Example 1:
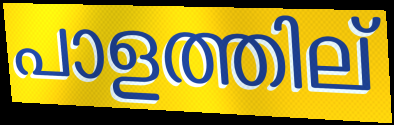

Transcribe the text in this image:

പാളത്തില്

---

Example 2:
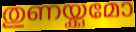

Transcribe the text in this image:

തുണയ്ക്കുമോ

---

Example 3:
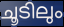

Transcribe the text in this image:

ചൂടിലും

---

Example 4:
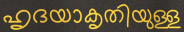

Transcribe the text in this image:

ഹൃദയാകൃതിയുള്ള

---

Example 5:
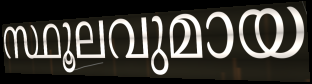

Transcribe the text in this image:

സ്ഥൂലവുമായ